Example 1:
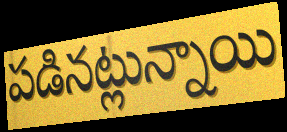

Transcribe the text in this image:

పడినట్లున్నాయి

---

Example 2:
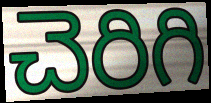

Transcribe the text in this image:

చెరిగి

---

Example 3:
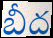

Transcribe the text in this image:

బీద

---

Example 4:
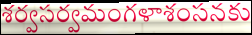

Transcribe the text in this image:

శర్వసర్వమంగళాశంసనకు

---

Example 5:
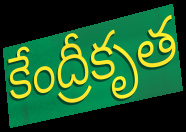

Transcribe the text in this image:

కేంద్రీకృత